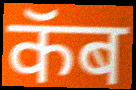
कॅब